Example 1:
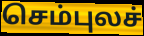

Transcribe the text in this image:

செம்புலச்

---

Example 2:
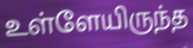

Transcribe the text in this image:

உள்ளேயிருந்த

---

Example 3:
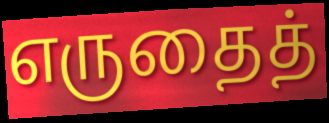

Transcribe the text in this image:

எருதைத்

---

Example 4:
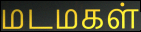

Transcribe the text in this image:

மடமகள்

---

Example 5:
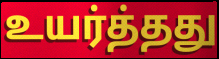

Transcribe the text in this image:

உயர்த்தது